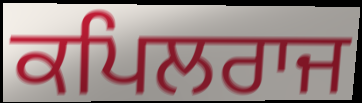
ਕਪਿਲਰਾਜ